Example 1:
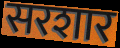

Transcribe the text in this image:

सरशार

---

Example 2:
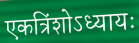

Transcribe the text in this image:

एकत्रिंशोऽध्यायः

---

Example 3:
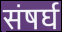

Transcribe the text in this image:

संषर्घ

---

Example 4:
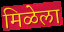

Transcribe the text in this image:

मिळेला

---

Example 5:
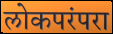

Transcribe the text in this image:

लोकपरंपरा